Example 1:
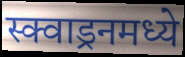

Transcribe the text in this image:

स्क्वाड्रनमध्ये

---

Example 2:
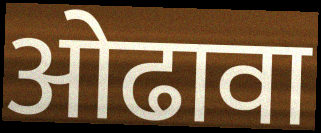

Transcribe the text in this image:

ओढावा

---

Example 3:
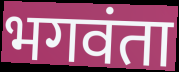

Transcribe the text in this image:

भगवंता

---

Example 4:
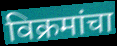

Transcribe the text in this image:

विक्रमांचा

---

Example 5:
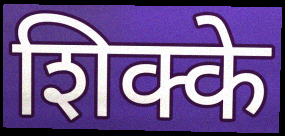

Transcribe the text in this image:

शिक्के